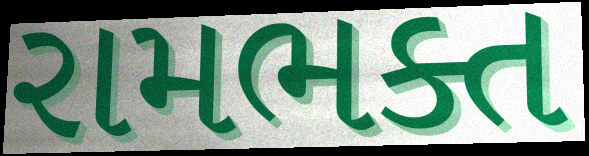
રામભક્ત